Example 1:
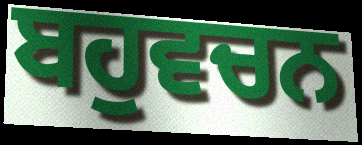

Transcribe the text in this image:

ਬਹੁਵਚਨ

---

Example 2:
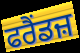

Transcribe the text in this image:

ਫਰੈਂਡਜ਼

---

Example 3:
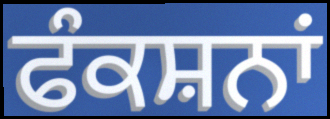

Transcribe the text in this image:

ਫੰਕਸ਼ਨਾਂ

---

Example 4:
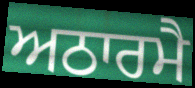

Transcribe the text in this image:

ਅਠਾਰਮੈ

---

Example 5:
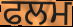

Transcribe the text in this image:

ਫਲਮ